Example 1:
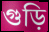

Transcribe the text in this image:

গুড়ি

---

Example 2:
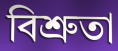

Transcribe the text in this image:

বিশ্রুতা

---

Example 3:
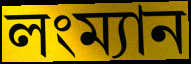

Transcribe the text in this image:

লংম্যান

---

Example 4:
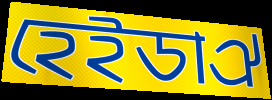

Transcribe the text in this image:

হেইডাঐ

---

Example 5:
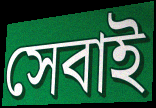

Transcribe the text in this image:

সেবাই